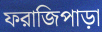
ফরাজিপাড়া